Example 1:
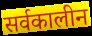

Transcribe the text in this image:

सर्वकालीन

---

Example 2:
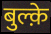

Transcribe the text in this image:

बुल्क़े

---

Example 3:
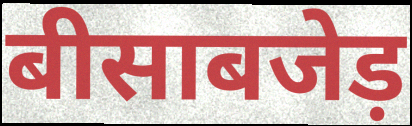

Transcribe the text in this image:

बीसाबजेड़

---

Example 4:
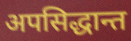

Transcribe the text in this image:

अपसिद्धान्त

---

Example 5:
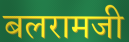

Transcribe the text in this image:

बलरामजी